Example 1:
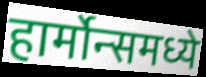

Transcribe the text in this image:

हार्मोन्समध्ये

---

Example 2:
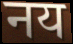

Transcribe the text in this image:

नय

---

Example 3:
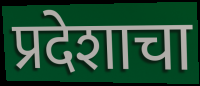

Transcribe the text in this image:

प्रदेशाचा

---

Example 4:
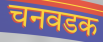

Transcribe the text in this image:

चनवडक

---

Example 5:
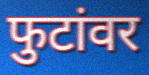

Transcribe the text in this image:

फुटांवर